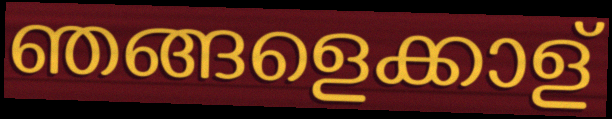
ഞങ്ങളെക്കാള്